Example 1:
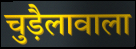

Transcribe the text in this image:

चुड़ैलावाला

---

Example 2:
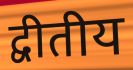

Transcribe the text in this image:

द्वीतीय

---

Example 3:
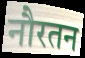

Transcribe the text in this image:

नौरतन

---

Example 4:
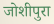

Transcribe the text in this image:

जोशीपुरा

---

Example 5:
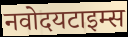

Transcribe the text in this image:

नवोदयटाइम्स